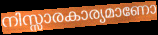
നിസ്സാരകാര്യമാണോ